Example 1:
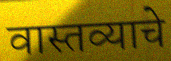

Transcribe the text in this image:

वास्तव्याचे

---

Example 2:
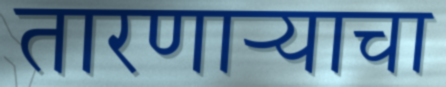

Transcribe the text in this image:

तारणाऱ्याचा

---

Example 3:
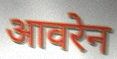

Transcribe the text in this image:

आवरेन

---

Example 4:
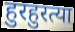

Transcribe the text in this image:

हुरहुरत्या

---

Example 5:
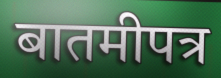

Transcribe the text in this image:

बातमीपत्र